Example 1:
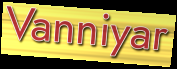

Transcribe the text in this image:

Vanniyar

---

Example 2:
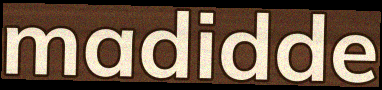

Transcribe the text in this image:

madidde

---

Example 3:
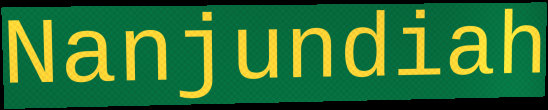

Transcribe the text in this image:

Nanjundiah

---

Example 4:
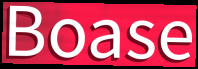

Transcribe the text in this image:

Boase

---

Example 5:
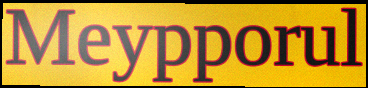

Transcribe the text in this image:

Meypporul